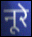
नूरे